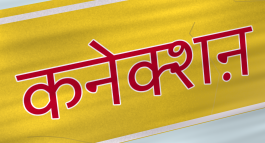
कनेक्शऩ